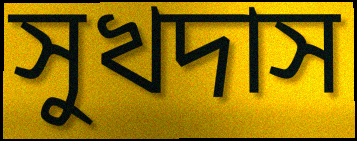
সুখদাস